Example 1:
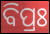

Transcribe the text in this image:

ବିପ୍ରଃ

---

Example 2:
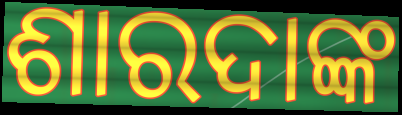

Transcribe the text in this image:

ଶାରଦାଙ୍କ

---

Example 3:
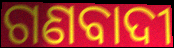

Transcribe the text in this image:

ଗଣବାଦୀ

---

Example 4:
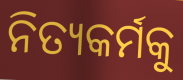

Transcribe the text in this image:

ନିତ୍ୟକର୍ମକୁ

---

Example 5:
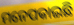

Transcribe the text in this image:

ମନେପକାଇଛି